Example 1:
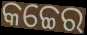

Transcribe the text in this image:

କଚ୍ଚେର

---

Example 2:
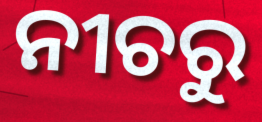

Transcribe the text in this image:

ନୀଚରୁ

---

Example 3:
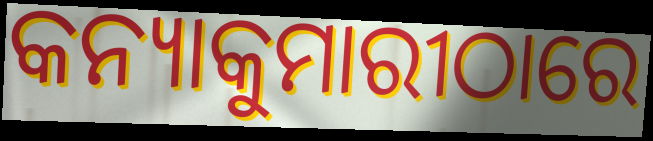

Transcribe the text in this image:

କନ୍ୟାକୁମାରୀଠାରେ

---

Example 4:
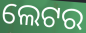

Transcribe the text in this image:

ଲେଟର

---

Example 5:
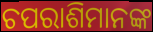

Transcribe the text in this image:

ଚପରାଶିମାନଙ୍କ